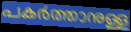
പകർത്താനുള്ള